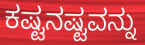
ಕಷ್ಟನಷ್ಟವನ್ನು